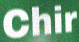
Chir